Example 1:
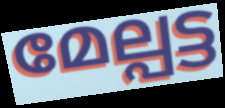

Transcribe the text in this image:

മേല്പട്ട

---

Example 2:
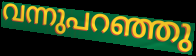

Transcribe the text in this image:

വന്നുപറഞ്ഞു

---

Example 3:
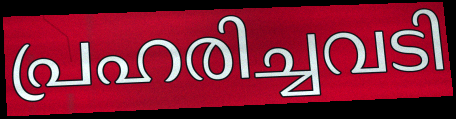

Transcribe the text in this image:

പ്രഹരിച്ചവടി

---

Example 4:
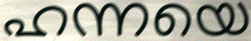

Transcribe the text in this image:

ഹന്നയെ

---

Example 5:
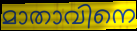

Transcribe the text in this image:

മാതാവിനെ